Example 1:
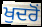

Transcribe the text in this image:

ਖੁਦਰੋਂ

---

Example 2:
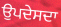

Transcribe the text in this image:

ਉਪਦੇਸਦਾ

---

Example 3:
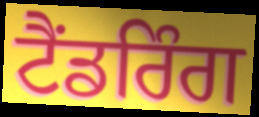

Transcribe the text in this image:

ਟੈਂਡਰਿੰਗ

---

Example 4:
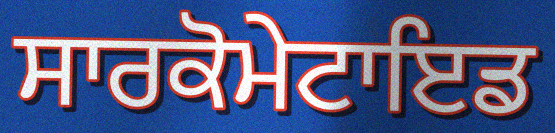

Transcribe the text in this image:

ਸਾਰਕੋਮੇਟਾਇਡ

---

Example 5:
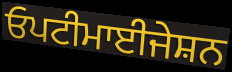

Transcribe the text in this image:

ਓਪਟੀਮਾਈਜੇਸ਼ਨ